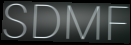
SDMF